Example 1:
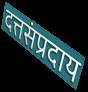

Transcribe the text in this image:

दत्तसंप्रदाय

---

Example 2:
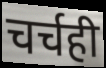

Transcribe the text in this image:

चर्चही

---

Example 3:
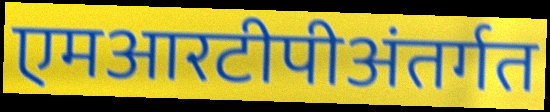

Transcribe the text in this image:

एमआरटीपीअंतर्गत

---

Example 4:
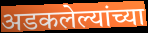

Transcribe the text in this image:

अडकलेल्यांच्या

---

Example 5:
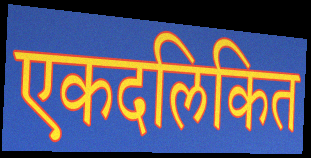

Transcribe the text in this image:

एकदलिकित